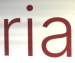
ria